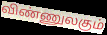
விண்ணுலகும்